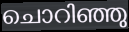
ചൊറിഞ്ഞു